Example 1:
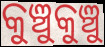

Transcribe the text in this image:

କୁଞ୍ଚୁକୁଞ୍ଚୁ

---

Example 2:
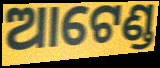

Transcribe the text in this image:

ଆଟେଣ୍ଡ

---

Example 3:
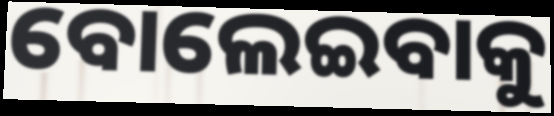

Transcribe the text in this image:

ବୋଲେଇବାକୁ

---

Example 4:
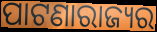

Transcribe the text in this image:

ପାଟଣାରାଜ୍ୟର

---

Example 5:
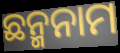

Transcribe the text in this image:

ଛନ୍ମନାମ